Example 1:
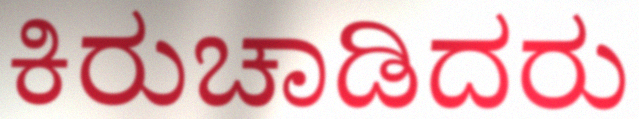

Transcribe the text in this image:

ಕಿರುಚಾಡಿದರು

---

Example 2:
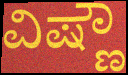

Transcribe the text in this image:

ವಿಷ್ಣೌ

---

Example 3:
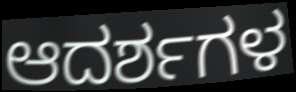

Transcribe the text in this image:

ಆದರ್ಶಗಳ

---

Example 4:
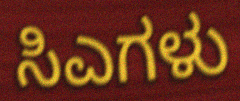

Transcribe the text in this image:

ಸಿಎಗಳು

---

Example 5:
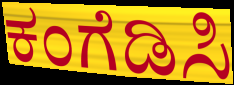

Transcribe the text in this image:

ಕಂಗೆಡಿಸಿ